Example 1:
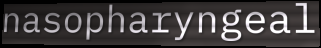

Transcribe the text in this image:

nasopharyngeal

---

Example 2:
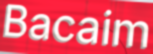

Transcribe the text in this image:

Bacaim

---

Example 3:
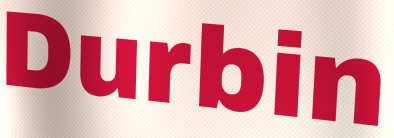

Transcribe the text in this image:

Durbin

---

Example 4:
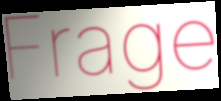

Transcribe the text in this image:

Frage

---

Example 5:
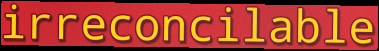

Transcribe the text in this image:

irreconcilable